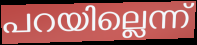
പറയില്ലെന്ന്